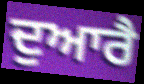
ਦੁਆਰੈ